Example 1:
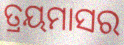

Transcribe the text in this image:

ତ୍ରୟମାସର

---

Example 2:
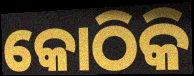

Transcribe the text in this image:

କୋଠିକି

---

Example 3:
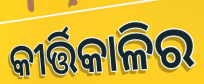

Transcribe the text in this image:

କୀର୍ତ୍ତିକାଳିର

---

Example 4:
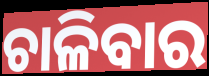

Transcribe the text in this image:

ଚାଳିବାର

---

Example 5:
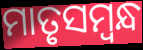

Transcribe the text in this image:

ମାତୃସମ୍ବନ୍ଧ